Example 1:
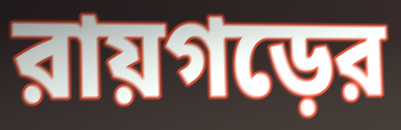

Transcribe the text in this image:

রায়গড়ের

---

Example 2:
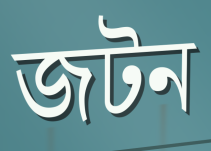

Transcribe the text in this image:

জটন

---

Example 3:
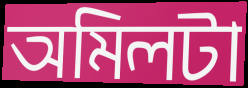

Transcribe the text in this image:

অমিলটা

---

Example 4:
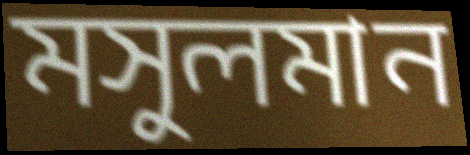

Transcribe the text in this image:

মসুলমান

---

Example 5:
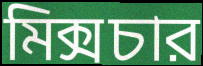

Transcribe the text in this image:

মিক্সচার